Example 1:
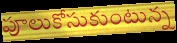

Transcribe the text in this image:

పూలుకోసుకుంటున్న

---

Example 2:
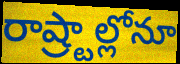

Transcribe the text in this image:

రాష్ర్టాల్లోనూ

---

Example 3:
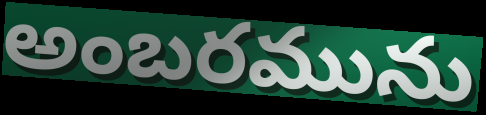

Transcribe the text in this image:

అంబరమును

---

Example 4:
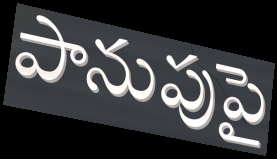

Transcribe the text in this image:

పానుపుపై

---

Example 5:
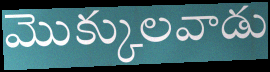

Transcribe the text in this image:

మొక్కులవాడు